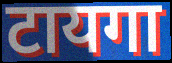
टायगा